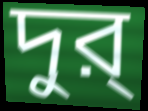
দুর্